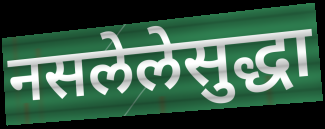
नसलेलेसुद्धा